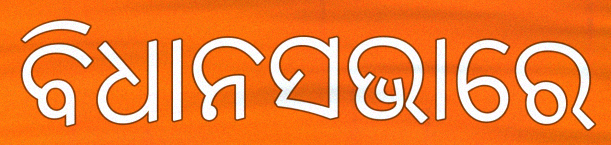
ବିଧାନସଭାରେ